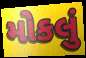
મોકલું